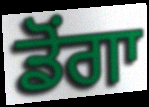
ਡੋਂਗਾ